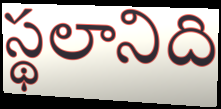
స్థలానిది